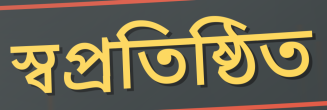
স্বপ্রতিষ্ঠিত